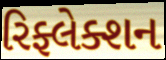
રિફ્લેક્શન